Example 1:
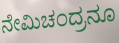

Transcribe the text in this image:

ನೇಮಿಚಂದ್ರನೂ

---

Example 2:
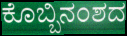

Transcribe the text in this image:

ಕೊಬ್ಬಿನಂಶದ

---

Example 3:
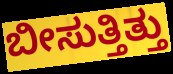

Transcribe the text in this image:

ಬೀಸುತ್ತಿತ್ತು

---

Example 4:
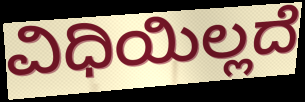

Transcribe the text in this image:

ವಿಧಿಯಿಲ್ಲದೆ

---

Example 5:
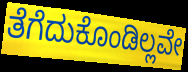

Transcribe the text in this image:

ತೆಗೆದುಕೊಂಡಿಲ್ಲವೇ